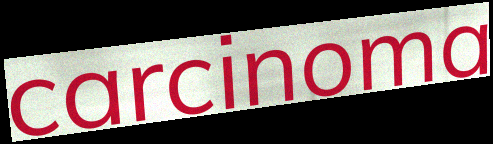
carcinoma